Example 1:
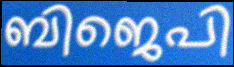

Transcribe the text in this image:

ബിജെപി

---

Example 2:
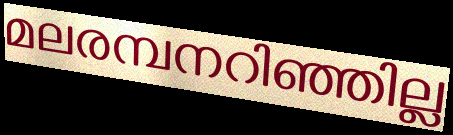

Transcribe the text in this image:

മലരമ്പനറിഞ്ഞില്ല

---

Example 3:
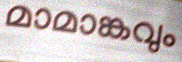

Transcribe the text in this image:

മാമാങ്കവും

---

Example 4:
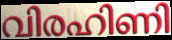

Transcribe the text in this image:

വിരഹിണി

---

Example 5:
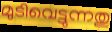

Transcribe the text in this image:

മുടിവെട്ടുന്നതു